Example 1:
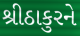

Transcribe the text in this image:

શ્રીઠાકુરને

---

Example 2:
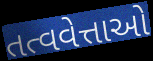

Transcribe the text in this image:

તત્વવેત્તાઓ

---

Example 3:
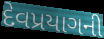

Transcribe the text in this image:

દેવપ્રયાગની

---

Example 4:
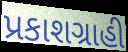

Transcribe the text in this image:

પ્રકાશગ્રાહી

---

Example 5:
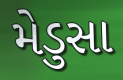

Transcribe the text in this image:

મેડુસા